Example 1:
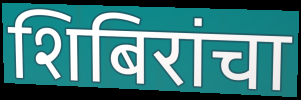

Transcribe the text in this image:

शिबिरांचा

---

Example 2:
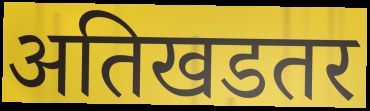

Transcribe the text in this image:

अतिखडतर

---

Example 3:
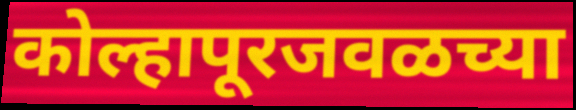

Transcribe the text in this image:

कोल्हापूरजवळच्या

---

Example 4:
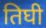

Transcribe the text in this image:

तिघी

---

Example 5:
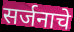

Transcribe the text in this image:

सर्जनाचे